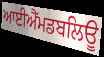
ਆਈਐੱਮਡਬਲਿਊ